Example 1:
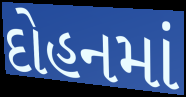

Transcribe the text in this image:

દોહનમાં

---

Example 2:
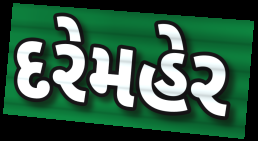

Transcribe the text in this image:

દરેમહેર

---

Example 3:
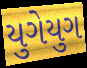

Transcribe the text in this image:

યુગેયુગ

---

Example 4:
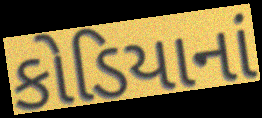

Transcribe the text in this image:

કોડિયાનાં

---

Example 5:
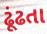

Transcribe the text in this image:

ઢૂંઢતા